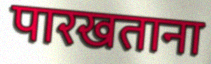
पारखताना